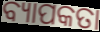
ବ୍ୟାପକତା